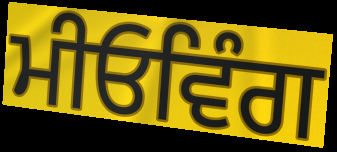
ਮੀਓਵਿੰਗ